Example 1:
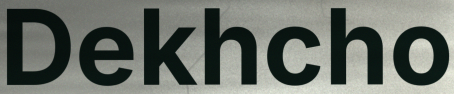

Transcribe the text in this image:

Dekhcho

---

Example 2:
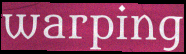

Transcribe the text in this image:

warping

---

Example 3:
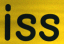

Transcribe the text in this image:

iss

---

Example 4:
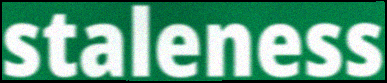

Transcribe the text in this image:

staleness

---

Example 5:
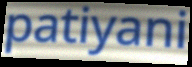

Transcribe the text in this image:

patiyani